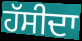
ਹੱਸੀਦਾ